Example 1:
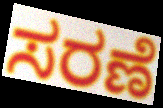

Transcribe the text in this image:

ಸರಣೆ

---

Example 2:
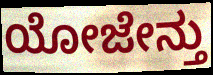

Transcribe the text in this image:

ಯೋಜೇನ್ತು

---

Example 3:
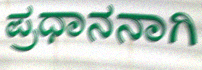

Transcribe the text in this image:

ಪ್ರಧಾನನಾಗಿ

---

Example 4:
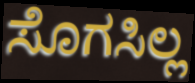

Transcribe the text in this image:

ಸೊಗಸಿಲ್ಲ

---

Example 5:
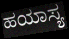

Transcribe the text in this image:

ಹಯಾಸ್ಯ